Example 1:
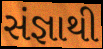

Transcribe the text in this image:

સંજ્ઞાથી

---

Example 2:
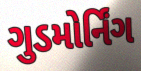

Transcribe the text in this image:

ગુડમોર્નિંગ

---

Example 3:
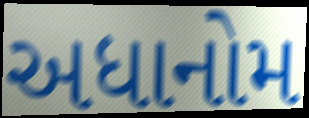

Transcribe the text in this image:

અધાનોમ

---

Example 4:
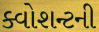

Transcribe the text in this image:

ક્વોશન્ટની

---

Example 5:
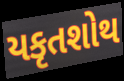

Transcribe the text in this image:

યકૃતશોથ